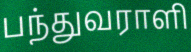
பந்துவராளி